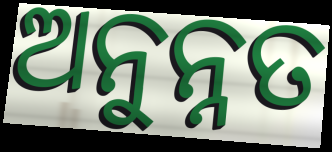
ଅନୁନ୍ନତ